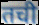
तची